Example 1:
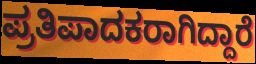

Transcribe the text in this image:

ಪ್ರತಿಪಾದಕರಾಗಿದ್ದಾರೆ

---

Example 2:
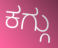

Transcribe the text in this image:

ಕಗ್ಗು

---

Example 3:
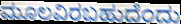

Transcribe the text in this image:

ಮೂಲವಿರಬಹುದೆಂದು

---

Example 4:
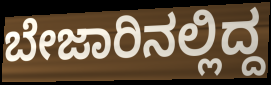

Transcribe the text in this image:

ಬೇಜಾರಿನಲ್ಲಿದ್ದ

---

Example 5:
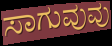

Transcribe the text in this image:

ಸಾಗುವುವು